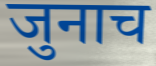
जुनाच